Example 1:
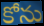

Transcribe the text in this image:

కోను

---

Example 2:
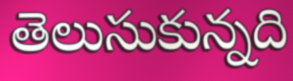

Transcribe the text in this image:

తెలుసుకున్నది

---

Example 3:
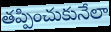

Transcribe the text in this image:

తప్పించుకునేలా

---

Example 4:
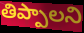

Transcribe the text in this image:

తిప్పాలని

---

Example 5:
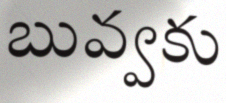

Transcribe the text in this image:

బువ్వకు